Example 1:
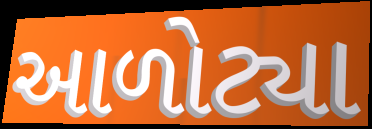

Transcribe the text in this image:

આળોટ્યા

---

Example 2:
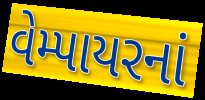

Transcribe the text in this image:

વેમ્પાયરનાં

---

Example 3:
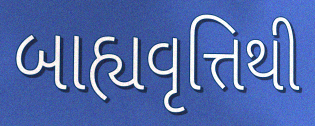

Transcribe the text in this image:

બાહ્યવૃત્તિથી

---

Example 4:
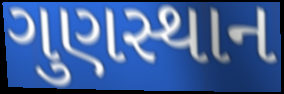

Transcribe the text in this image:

ગુણસ્થાન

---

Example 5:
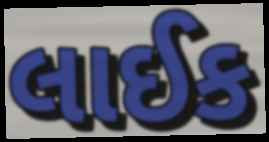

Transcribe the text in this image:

લાઈક